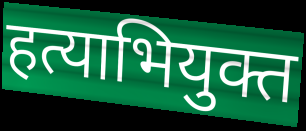
हत्याभियुक्त